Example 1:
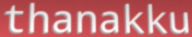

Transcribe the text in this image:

thanakku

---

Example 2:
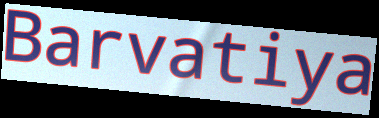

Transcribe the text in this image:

Barvatiya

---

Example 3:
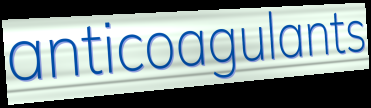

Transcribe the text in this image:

anticoagulants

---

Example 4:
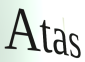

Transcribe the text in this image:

Atas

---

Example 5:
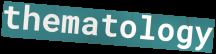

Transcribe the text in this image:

thematology